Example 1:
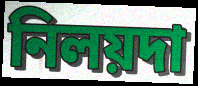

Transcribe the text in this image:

নিলয়দা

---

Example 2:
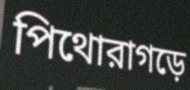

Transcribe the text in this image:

পিথোরাগড়ে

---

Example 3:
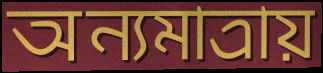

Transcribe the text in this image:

অন্যমাত্রায়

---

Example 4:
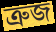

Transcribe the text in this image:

ত্রুজ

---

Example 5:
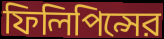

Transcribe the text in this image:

ফিলিপিন্সের